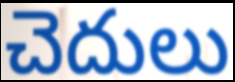
చెదులు